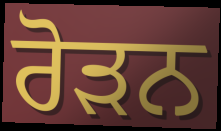
ਰੋੜਨ